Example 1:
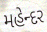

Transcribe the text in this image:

મહેન્દર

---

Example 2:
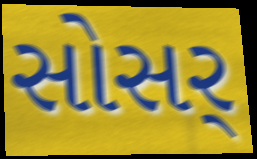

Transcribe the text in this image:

સોસર્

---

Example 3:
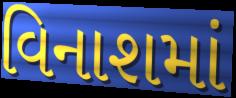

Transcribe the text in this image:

વિનાશમાં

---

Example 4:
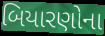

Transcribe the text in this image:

બિયારણોના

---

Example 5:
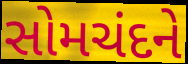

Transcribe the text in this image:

સોમચંદને